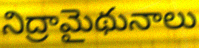
నిద్రామైథునాలు